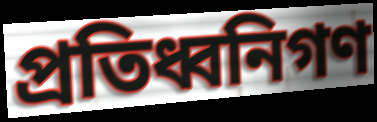
প্রতিধ্বনিগণ